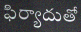
ఫిర్యాదుతో